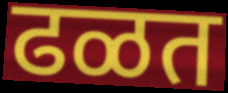
ढळत